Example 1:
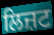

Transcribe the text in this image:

ਲਿਜ਼ਟ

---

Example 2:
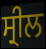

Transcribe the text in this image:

ਸ੍ਰੀਲ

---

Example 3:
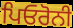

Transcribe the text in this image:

ਪਿਓਰੋਨੀ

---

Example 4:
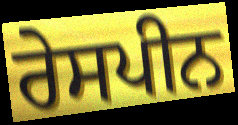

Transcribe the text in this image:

ਰੇਸਪੀਨ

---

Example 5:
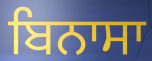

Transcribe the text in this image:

ਬਿਨਾਸਾ